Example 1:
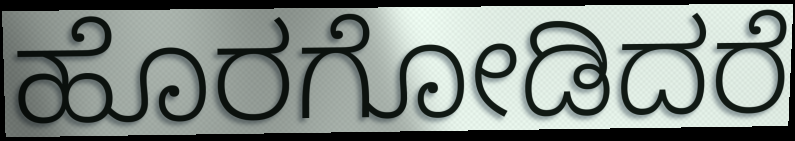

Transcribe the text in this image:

ಹೊರಗೋಡಿದರೆ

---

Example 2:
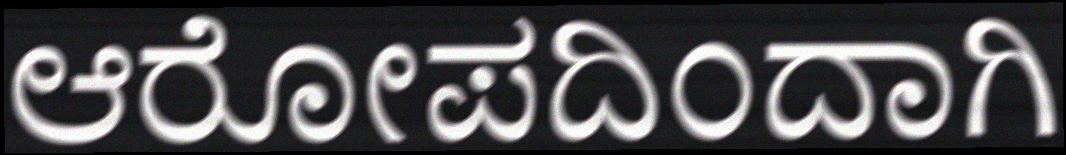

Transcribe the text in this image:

ಆರೋಪದಿಂದಾಗಿ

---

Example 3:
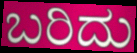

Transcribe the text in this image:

ಬರಿದು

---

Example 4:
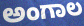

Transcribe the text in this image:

ಅಂಗಾಲ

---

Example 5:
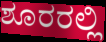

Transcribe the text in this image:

ಶೂರರಲ್ಲಿ